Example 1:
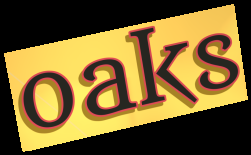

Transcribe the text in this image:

oaks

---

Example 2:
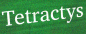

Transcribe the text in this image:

Tetractys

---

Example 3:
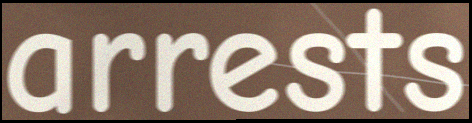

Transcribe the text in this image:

arrests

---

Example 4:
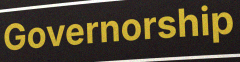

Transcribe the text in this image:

Governorship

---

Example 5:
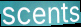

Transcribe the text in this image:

scents